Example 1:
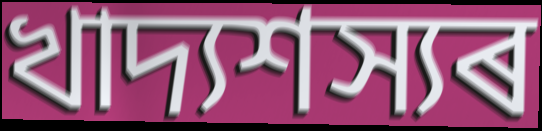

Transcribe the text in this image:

খাদ্যশস্যৰ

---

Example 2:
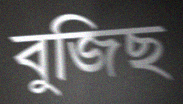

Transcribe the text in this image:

বুজিছ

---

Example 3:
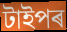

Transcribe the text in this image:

টাইপৰ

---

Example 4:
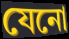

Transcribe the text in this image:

যেনো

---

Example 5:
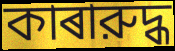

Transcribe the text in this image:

কাৰাৰুদ্ধ